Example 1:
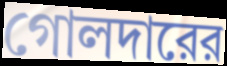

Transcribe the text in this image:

গোলদারের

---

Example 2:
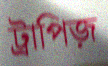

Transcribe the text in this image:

ট্রাপিজ়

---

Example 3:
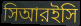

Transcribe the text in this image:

সিআরইসি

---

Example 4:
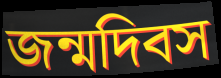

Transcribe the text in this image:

জন্মদিবস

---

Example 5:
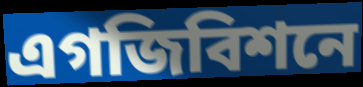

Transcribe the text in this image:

এগজিবিশনে